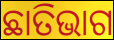
ଛାତିଭାଗ